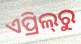
ଏପ୍ରିଲ୍‌ରୁ